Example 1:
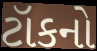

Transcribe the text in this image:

ટૉકનો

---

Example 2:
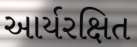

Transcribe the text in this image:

આર્યરક્ષિત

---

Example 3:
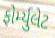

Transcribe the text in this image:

ફોર્મ્યુલેટ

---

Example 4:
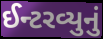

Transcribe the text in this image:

ઈન્ટરવ્યુનું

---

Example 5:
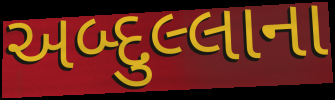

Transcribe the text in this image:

અબ્દુલ્લાના